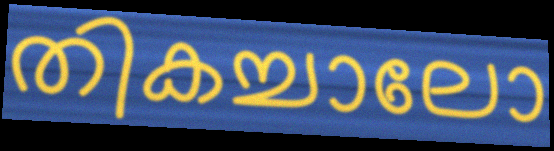
തികച്ചാലോ